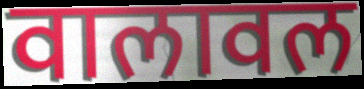
वालावल